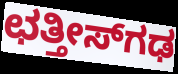
ಛತ್ತೀಸ್‍ಗಢ